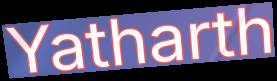
Yatharth